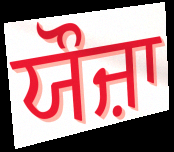
ਯੌਜ਼ਾ